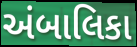
અંબાલિકા